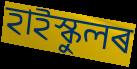
হাইস্কুলৰ